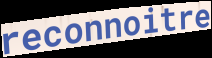
reconnoitre